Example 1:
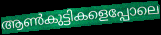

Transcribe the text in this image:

ആൺകുട്ടികളെപ്പോലെ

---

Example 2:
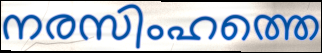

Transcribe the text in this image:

നരസിംഹത്തെ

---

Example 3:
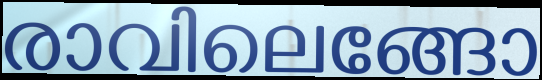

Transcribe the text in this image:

രാവിലെങ്ങോ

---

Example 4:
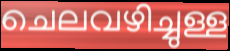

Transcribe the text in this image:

ചെലവഴിച്ചുള്ള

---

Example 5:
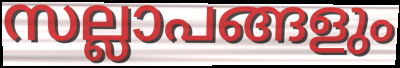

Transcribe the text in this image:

സല്ലാപങ്ങളും